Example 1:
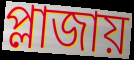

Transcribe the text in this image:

প্লাজায়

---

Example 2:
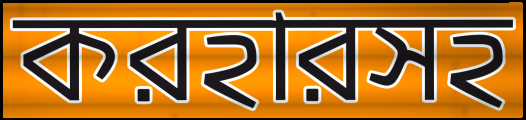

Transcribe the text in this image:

করহারসহ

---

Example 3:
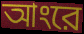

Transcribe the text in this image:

আংরে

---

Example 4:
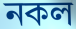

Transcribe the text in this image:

নকল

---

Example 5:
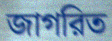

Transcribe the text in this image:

জাগরিত